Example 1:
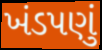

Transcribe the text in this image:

ખંડપણું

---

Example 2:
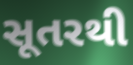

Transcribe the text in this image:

સૂતરથી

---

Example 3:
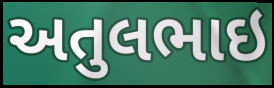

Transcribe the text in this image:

અતુલભાઇ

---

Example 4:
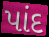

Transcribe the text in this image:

પાંદ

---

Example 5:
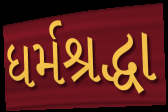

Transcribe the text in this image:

ધર્મશ્રદ્ધા